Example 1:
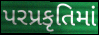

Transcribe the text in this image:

પરપ્રકૃતિમાં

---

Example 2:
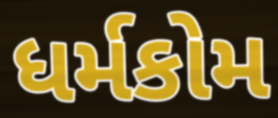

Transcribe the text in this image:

ધર્મકોમ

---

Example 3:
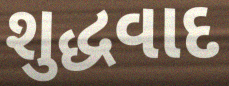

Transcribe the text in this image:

શુદ્ધવાદ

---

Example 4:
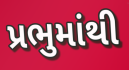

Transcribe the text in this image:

પ્રભુમાંથી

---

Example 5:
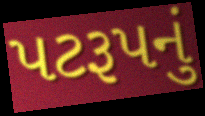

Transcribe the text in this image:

પટરૂપનું